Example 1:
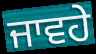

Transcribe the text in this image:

ਜਾਵਹੇ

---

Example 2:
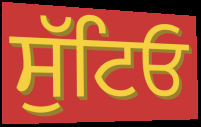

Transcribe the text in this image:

ਸੁੱਟਿਓ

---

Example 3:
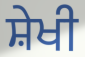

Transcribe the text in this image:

ਸ਼ੇਖੀ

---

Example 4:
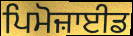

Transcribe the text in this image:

ਪਿਮੋਜ਼ਾਈਡ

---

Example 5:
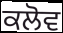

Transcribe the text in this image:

ਕਲੋਵ